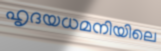
ഹൃദയധമനിയിലെ